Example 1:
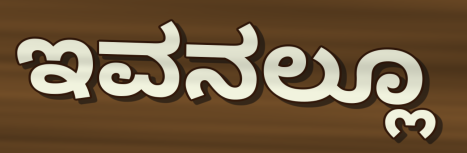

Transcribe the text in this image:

ಇವನಲ್ಲೂ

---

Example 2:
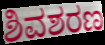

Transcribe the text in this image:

ಶಿವಶರಣ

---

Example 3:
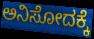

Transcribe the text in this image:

ಅನಿಸೋದಕ್ಕೆ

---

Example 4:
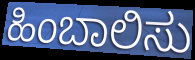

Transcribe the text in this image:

ಹಿಂಬಾಲಿಸು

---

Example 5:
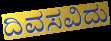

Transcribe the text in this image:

ದಿವಸವಿದು